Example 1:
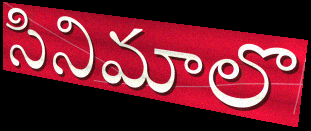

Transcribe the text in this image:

సినిమాలొ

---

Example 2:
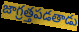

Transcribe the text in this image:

జాగ్రత్తపడతాడు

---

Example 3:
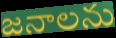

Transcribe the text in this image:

జనాలను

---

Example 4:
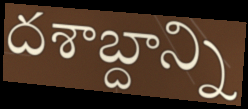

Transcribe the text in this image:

దశాబ్దాన్ని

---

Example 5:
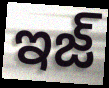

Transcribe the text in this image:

ఇజ్